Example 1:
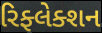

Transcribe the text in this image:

રિફ્લેક્શન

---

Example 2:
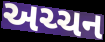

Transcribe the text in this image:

અચ્ચન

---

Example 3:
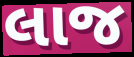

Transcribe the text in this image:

લાજ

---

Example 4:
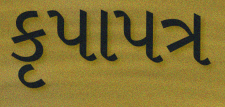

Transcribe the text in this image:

કૃપાપત્ર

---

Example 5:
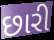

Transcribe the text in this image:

છારી